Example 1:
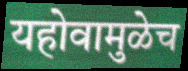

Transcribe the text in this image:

यहोवामुळेच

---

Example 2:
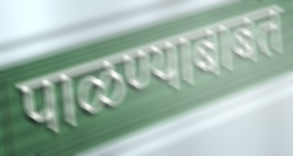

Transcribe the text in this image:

पाळण्याबाबत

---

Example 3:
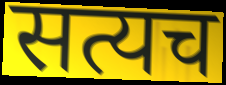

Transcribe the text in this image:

सत्यच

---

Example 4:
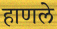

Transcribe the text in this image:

हाणले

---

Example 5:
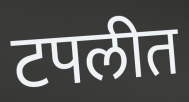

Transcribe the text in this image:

टपलीत